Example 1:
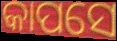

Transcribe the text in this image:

କାପସେ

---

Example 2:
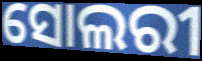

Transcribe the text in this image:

ସୋଲରୀ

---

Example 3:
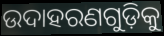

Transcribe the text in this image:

ଉଦାହରଣଗୁଡ଼ିକୁ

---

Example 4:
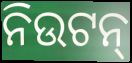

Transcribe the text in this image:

ନିଉଟନ୍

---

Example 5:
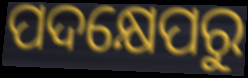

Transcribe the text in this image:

ପଦକ୍ଷେପରୁ